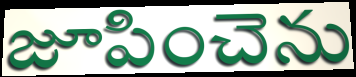
జూపించెను